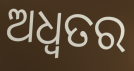
ଅଧ୍ଵତର